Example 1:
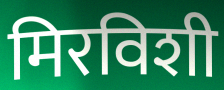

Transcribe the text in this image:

मिरविशी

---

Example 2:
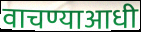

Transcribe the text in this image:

वाचण्याआधी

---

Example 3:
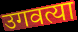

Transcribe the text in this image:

उगवत्या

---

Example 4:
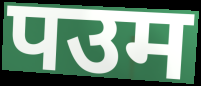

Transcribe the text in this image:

पउम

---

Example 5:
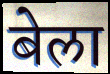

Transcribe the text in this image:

बेला